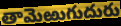
తామెఱుగుదురు